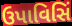
ઉપાવિસિં